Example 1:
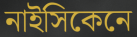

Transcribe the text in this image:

নাইসিকেনে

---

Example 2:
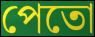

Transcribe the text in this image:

পেতো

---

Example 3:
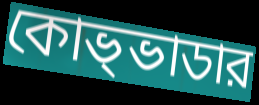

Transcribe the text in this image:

কোভ্ভাডার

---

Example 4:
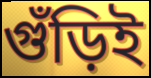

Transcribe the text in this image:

গুঁড়িই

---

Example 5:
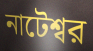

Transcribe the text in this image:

নাটেশ্বর